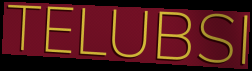
TELUBSI